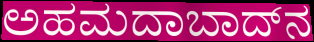
ಅಹಮದಾಬಾದ್‌ನ